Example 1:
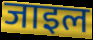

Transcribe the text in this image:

जाइल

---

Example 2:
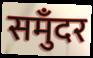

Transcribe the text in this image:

समुँदर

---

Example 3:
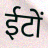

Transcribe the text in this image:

ईटों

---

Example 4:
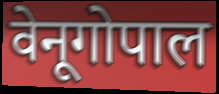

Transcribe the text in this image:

वेनूगोपाल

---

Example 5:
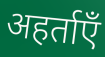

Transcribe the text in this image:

अहर्ताएँ